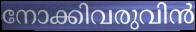
നോക്കിവരുവിൻ